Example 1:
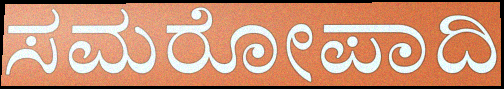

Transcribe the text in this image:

ಸಮರೋಪಾದಿ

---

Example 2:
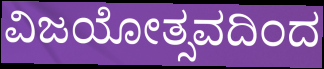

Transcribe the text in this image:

ವಿಜಯೋತ್ಸವದಿಂದ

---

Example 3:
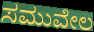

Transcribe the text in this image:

ಸಮುವೇಲ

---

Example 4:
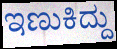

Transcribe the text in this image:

ಇಣುಕಿದ್ದು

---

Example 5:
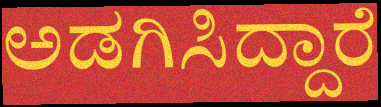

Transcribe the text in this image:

ಅಡಗಿಸಿದ್ದಾರೆ